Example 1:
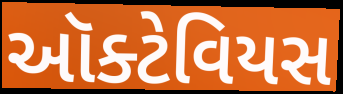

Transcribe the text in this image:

ઑક્ટેવિયસ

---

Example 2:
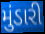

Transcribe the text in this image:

મુંડારી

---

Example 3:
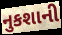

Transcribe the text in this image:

નુકશાની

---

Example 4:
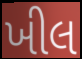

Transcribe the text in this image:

ખીલ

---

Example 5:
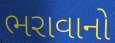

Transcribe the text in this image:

ભરાવાનો